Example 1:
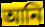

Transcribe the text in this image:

আনি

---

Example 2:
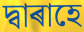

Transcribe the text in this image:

দ্বাৰাহে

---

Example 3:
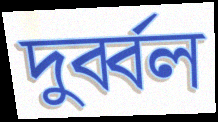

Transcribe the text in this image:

দুৰ্ব্বল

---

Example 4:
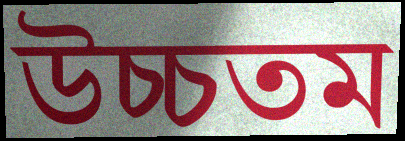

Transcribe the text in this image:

উচ্চতম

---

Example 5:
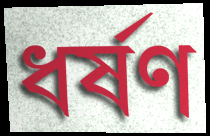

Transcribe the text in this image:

ধৰ্ষণ